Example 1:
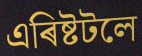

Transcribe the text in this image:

এৰিষ্টটলে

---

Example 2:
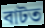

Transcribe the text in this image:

বাটত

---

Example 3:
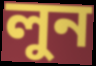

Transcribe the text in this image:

লুন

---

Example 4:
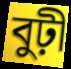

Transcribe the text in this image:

বুঢ়ী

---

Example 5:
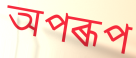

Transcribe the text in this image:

অপৰূপ